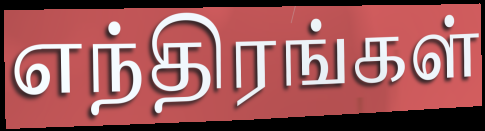
எந்திரங்கள்